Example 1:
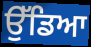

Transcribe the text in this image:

ਉੱਡਿਆ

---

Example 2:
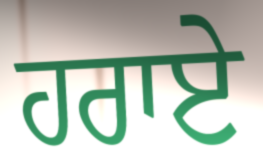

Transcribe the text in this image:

ਹਰਾਏ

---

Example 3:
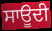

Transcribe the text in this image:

ਸਾਊਦੀ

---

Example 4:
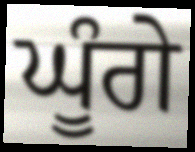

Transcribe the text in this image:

ਘੂੰਗੇ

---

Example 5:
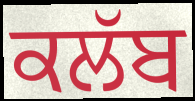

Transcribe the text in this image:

ਕਲੱਬ